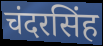
चंदरसिंह